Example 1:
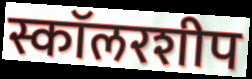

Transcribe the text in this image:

स्कॉलरशीप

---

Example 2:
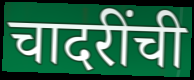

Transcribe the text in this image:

चादरींची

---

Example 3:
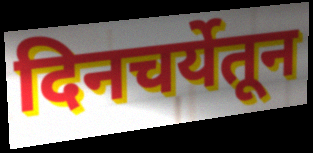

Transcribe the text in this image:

दिनचर्येतून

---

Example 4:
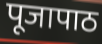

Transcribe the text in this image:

पूजापाठ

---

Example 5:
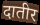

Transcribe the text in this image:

दातीर